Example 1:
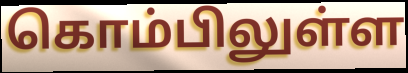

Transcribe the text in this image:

கொம்பிலுள்ள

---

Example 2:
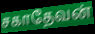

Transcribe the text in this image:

சகாதேவன்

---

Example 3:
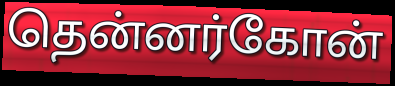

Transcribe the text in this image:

தென்னர்கோன்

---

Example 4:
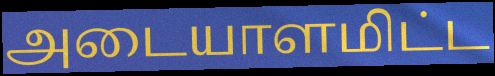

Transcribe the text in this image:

அடையாளமிட்ட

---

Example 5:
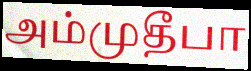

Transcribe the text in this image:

அம்முதீபா